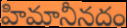
హిమానీనదం